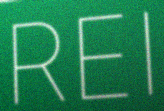
REI